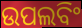
ଉପଲବିଂ